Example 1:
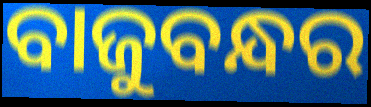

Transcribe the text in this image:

ବାଜୁବନ୍ଧର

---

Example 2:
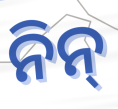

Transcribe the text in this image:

ନିନ୍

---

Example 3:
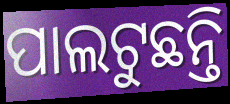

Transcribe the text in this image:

ପାଲଟୁଛନ୍ତି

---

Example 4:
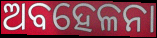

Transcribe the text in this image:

ଅବହେଳନା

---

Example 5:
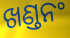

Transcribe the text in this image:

ଖଣ୍ଡନଂ